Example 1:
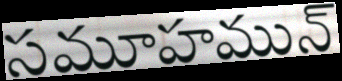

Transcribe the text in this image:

సమూహమున్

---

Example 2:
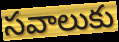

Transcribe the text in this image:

సవాలుకు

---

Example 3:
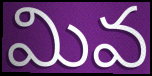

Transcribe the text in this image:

మివ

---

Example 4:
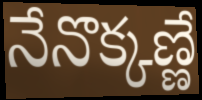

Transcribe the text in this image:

నేనొక్కణ్ణే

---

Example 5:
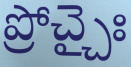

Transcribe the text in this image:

ప్రోచ్చైః